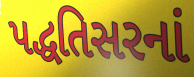
પદ્ધતિસરનાં